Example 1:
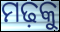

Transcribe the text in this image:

ମଢ଼କୁ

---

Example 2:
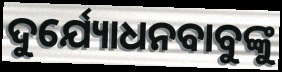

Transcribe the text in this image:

ଦୁର୍ଯ୍ୟୋଧନବାବୁଙ୍କୁ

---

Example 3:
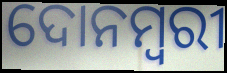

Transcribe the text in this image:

ଦୋନମ୍ବରୀ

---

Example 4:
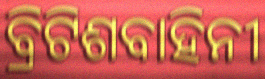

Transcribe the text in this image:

ବ୍ରିଟିଶବାହିନୀ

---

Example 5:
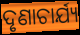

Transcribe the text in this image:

ଦୃଣାଚାର୍ଯ୍ୟ